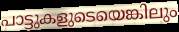
പാട്ടുകളുടെയെങ്കിലും